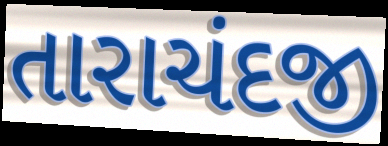
તારાચંદજી